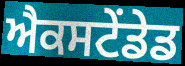
ਐਕਸਟੇਂਡੇਡ